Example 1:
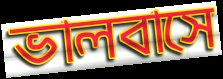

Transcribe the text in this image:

ভালবাসে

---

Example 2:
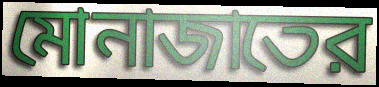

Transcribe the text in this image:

মোনাজাতের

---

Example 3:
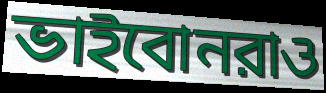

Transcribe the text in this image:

ভাইবোনরাও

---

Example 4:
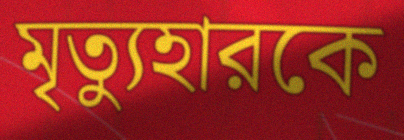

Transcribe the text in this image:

মৃত্যুহারকে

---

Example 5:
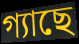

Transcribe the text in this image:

গ্যাছে